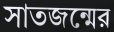
সাতজন্মের